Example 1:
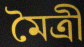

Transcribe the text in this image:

মৈত্রী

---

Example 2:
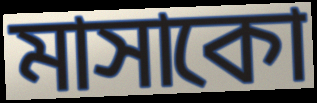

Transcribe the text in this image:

মাসাকো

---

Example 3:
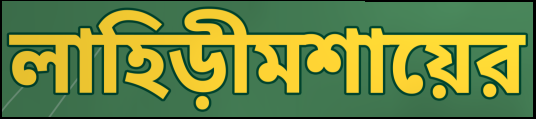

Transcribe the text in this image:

লাহিড়ীমশায়ের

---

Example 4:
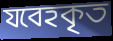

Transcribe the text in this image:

যবেহকৃত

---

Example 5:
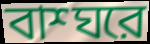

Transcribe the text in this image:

বাশ্ঘরে